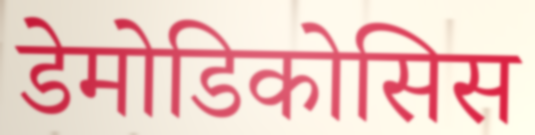
डेमोडिकोसिस